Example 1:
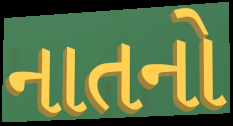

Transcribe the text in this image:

નાતનો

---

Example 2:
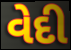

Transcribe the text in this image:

વેદી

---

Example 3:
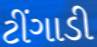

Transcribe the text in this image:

ટીંગાડી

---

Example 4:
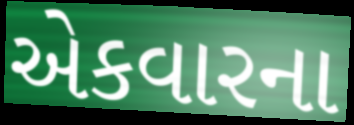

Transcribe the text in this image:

એકવારના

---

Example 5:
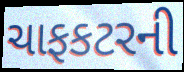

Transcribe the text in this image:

ચાફકટરની